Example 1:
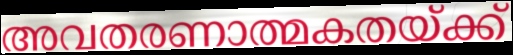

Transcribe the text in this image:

അവതരണാത്മകതയ്ക്ക്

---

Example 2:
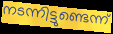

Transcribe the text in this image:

നടന്നിട്ടുണ്ടെന്ന്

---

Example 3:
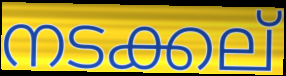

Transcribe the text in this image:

നടക്കല്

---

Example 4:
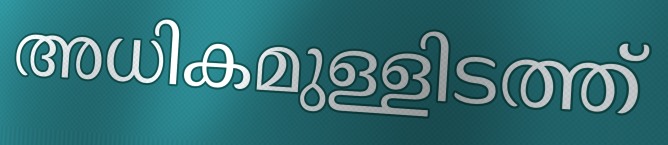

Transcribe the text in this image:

അധികമുള്ളിടത്ത്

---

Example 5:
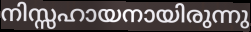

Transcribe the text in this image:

നിസ്സഹായനായിരുന്നു